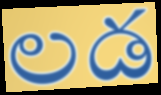
లడ